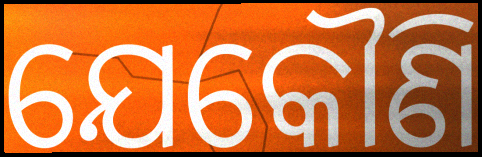
ଯେକୌଣି